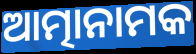
ଆତ୍ମାନାମକ